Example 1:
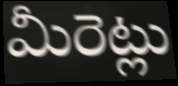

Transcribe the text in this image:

మీరెట్లు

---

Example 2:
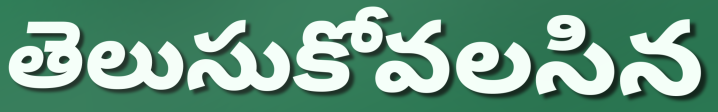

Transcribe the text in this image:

తెలుసుకోవలసిన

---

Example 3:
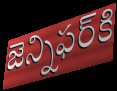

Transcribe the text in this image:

జెన్నిఫర్‌కి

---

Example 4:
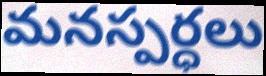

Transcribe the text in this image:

మనస్పర్ధలు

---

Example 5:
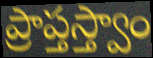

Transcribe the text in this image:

ప్రాప్తస్త్వాం